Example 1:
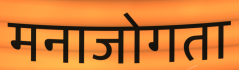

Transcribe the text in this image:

मनाजोगता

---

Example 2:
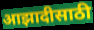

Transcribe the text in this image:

आझादीसाठी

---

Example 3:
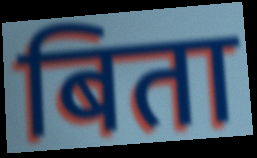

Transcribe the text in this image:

बिता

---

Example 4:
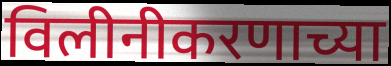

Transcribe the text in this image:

विलीनीकरणाच्या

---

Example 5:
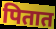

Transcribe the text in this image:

पितात